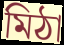
মিঠা